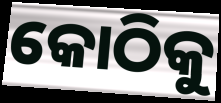
କୋଠିକୁ